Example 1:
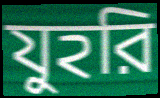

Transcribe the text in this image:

যুহরি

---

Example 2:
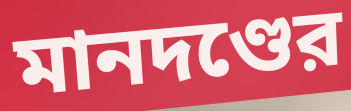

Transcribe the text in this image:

মানদণ্ডের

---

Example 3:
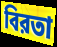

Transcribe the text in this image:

বিরতা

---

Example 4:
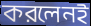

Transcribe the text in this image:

করলেনই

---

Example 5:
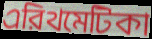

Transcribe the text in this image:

এরিথমেটিকা